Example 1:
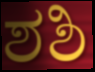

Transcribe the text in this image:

ಶಶಿ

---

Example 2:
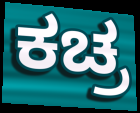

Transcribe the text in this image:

ಕಚ್ರ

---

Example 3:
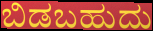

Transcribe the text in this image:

ಬಿಡಬಹುದು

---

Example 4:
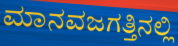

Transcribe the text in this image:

ಮಾನವಜಗತ್ತಿನಲ್ಲಿ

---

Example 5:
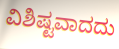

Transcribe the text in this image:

ವಿಶಿಷ್ಟವಾದದು